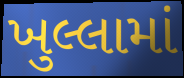
ખુલ્લામાં